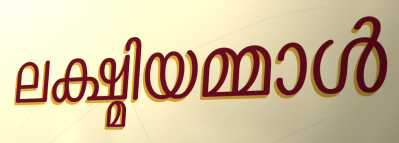
ലക്ഷ്മിയമ്മാൾ